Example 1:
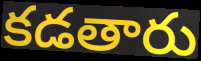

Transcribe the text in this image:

కడతారు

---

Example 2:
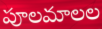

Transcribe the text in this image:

పూలమాలల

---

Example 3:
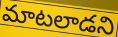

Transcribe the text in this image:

మాటలాడని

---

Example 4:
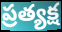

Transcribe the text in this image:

ప్రత్యక్ష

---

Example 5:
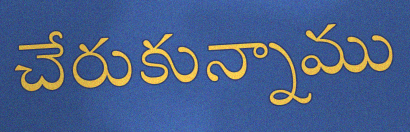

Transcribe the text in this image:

చేరుకున్నాము